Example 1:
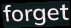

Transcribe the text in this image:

forget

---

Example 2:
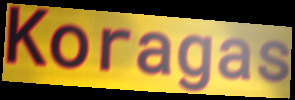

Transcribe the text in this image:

Koragas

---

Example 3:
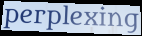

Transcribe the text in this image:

perplexing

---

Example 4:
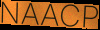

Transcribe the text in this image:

NAACP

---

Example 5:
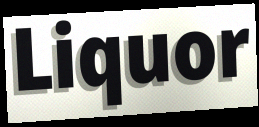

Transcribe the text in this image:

Liquor